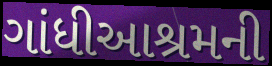
ગાંધીઆશ્રમની